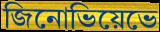
জিনোভিয়েভে